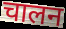
चालन